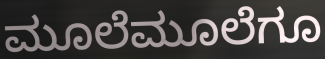
ಮೂಲೆಮೂಲೆಗೂ